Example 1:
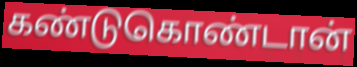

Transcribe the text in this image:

கண்டுகொண்டான்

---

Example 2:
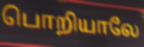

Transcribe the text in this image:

பொறியாலே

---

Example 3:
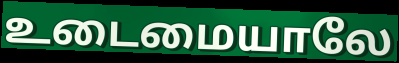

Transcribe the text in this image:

உடைமையாலே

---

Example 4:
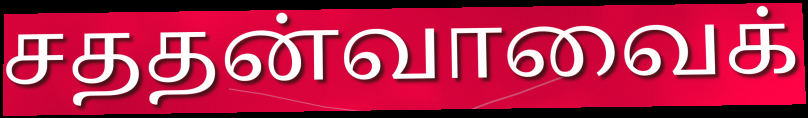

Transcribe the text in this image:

சததன்வாவைக்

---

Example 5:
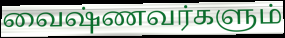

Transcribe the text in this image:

வைஷ்ணவர்களும்